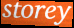
storey